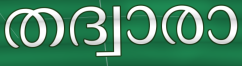
തദ്വാരാ